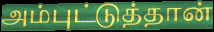
அம்புட்டுத்தான்